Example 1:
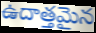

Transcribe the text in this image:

ఉదాత్తమైన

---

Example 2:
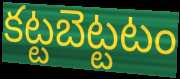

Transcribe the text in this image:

కట్టబెట్టటం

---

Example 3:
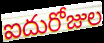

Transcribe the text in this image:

ఐదురోజుల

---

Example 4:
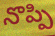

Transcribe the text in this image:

నొప్పి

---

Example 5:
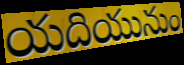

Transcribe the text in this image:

యదియునుం